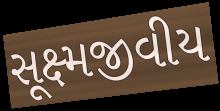
સૂક્ષ્મજીવીય